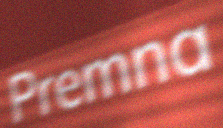
Premna